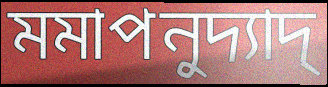
মমাপনুদ্যাদ্